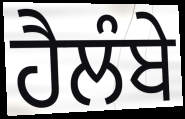
ਹੈਲੰਬੇ